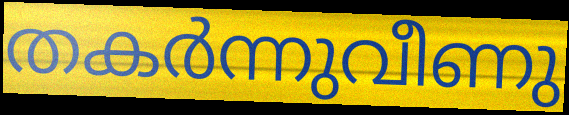
തകർന്നുവീണു